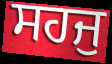
ਸਹਜੁ